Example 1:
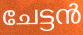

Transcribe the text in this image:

ചേട്ടൻ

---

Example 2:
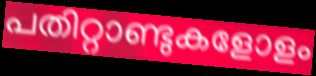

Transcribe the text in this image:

പതിറ്റാണ്ടുകളോളം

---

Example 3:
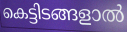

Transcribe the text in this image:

കെട്ടിടങ്ങളാൽ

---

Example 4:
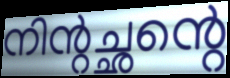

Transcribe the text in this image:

നിന്റച്ഛന്റെ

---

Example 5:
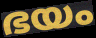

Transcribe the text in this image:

ഭയം